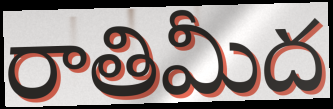
రాతిమీద